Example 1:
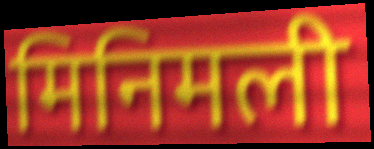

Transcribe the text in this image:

मिनिमली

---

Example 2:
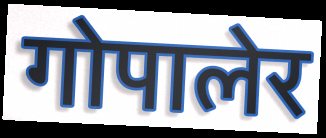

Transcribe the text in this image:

गोपालेर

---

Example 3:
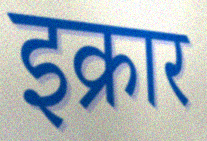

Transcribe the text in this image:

इक्रार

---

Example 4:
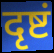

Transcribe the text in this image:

दृष्टं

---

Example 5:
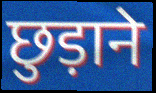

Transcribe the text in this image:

छुड़ाने